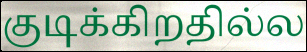
குடிக்கிறதில்ல